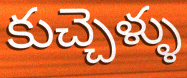
కుచ్చెళ్ళు